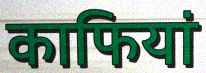
काफियां